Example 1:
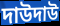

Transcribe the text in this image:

দাউদাউ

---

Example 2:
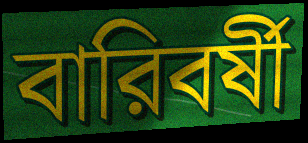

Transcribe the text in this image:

বারিবর্ষী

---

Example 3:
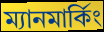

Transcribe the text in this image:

ম্যানমার্কিং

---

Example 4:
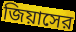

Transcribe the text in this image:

জিয়াসের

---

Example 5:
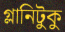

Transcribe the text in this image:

গ্লানিটুকু